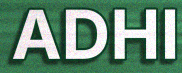
ADHI